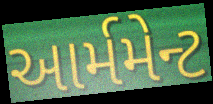
આર્મમેન્ટ